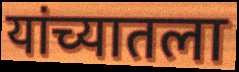
यांच्यातला